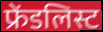
फ्रेंडलिस्ट